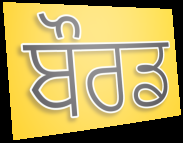
ਬੌਰਡ